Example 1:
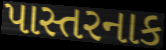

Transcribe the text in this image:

પાસ્તરનાક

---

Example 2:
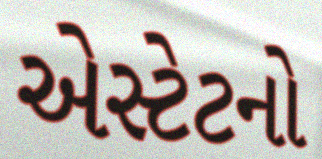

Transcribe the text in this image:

એસ્ટેટનો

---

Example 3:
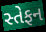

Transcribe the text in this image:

સ્તેફન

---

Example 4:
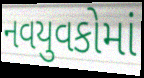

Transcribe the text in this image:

નવયુવકોમાં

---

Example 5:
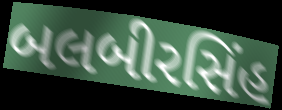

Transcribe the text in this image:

બલબીરસિંહ